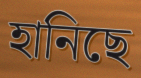
হানিছে